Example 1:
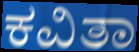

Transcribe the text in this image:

ಕವಿತಾ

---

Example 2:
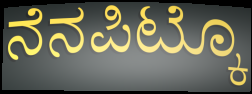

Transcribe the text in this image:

ನೆನಪಿಟ್ಕೊ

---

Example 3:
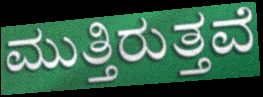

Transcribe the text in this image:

ಮುತ್ತಿರುತ್ತವೆ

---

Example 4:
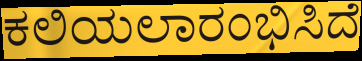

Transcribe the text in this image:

ಕಲಿಯಲಾರಂಭಿಸಿದೆ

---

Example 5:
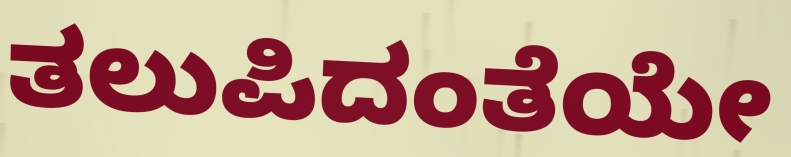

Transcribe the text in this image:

ತಲುಪಿದಂತೆಯೇ